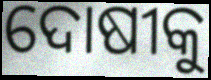
ଦୋଷୀକୁ